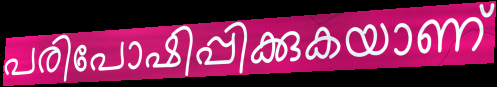
പരിപോഷിപ്പിക്കുകയാണ്